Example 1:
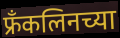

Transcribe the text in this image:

फ्रँकलिनच्या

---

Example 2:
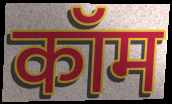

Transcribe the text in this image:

कॉम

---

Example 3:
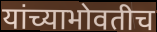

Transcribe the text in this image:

यांच्याभोवतीच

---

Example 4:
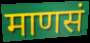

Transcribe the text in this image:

माणसं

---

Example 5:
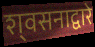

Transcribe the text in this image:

श्वसनाद्वारे